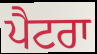
ਪੈਟਰਾ